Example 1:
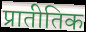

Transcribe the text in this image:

प्रातीतिक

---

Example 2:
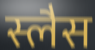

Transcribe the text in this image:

स्लैस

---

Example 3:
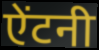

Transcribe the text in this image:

ऐंटनी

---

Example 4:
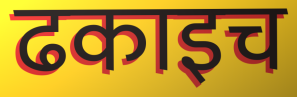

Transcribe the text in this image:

ढकाइच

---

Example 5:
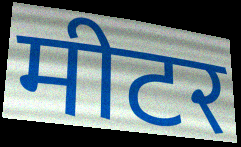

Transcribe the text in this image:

मीटर